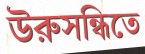
উরুসন্ধিতে